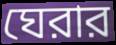
ঘেরার